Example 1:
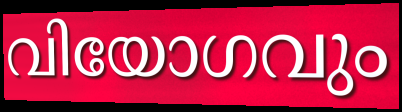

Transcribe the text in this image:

വിയോഗവും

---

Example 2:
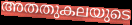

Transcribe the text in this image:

അതതുകലയുടെ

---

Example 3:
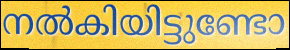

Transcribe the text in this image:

നൽകിയിട്ടുണ്ടോ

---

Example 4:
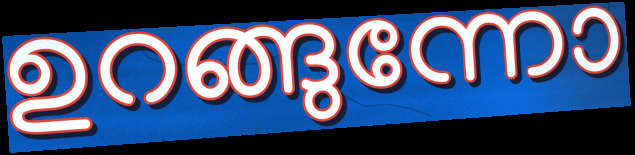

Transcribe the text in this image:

ഉറങ്ങുന്നോ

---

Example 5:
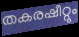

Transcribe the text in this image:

തകരഷീറ്റും